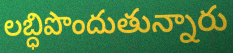
లబ్ధిపొందుతున్నారు